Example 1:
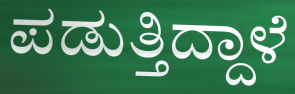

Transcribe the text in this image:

ಪಡುತ್ತಿದ್ದಾಳೆ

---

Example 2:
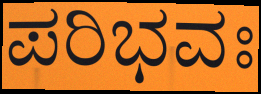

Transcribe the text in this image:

ಪರಿಭವಃ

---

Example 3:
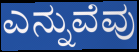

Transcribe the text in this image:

ಎನ್ನುವೆವು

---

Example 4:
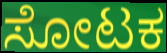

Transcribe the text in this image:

ಸೋಟಕ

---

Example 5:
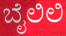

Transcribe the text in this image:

ಬೈಲಿಲಿ